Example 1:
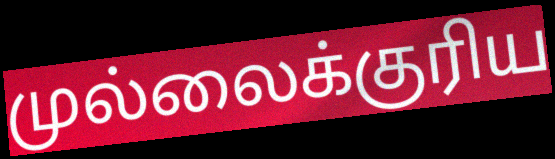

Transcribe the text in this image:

முல்லைக்குரிய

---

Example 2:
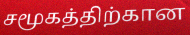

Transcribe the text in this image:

சமூகத்திற்கான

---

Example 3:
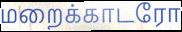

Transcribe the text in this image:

மறைக்காடரோ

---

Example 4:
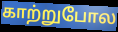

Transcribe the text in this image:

காற்றுபோல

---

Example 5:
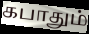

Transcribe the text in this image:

கபாதும்